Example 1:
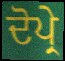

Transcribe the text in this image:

ਦੋਪ੍ਰੇ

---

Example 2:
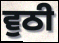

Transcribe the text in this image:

ਵੁਠੀ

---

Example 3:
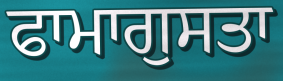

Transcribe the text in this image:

ਫਾਮਾਗੁਸਤਾ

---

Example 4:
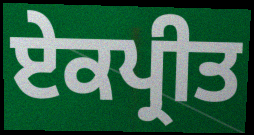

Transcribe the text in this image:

ਏਕਪ੍ਰੀਤ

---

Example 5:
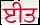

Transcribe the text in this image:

ਈਤ